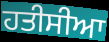
ਹਤੀਸੀਆ